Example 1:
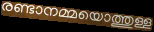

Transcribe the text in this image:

രണ്ടാനമ്മയൊത്തുള്ള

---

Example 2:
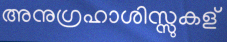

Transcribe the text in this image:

അനുഗ്രഹാശിസ്സുകള്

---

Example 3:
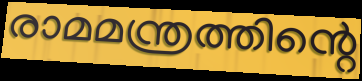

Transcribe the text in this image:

രാമമന്ത്രത്തിന്റെ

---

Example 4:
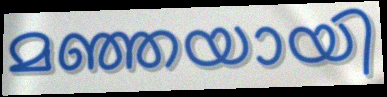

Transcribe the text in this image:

മഞ്ഞയായി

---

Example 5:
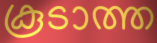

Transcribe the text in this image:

കൂടാത്ത